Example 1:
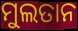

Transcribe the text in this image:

ମୁଲତାନ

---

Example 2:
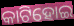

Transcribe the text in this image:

କାଟିହୋଇ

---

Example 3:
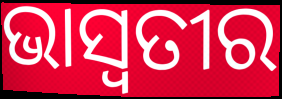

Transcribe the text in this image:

ଭାସ୍ୱତୀର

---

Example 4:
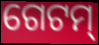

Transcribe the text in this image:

ଗେଟମ୍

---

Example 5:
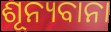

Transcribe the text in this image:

ଶୂନ୍ୟବାନା